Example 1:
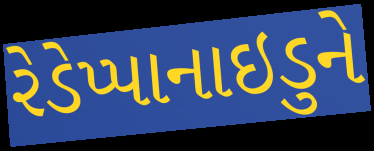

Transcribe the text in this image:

રેડેપ્પાનાઇડુને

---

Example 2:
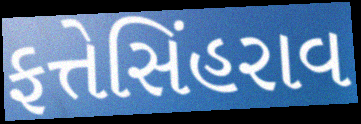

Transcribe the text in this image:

ફત્તેસિંહરાવ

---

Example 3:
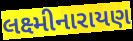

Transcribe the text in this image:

લક્ષ્મીનારાયણ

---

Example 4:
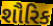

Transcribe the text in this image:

શૌરિક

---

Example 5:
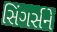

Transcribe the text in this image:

સિંગર્સને